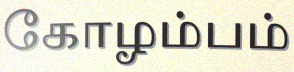
கோழம்பம்